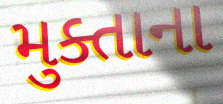
મુક્તાના